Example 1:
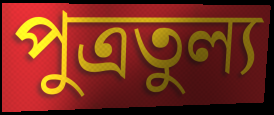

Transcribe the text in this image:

পুত্রতুল্য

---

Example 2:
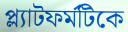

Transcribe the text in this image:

প্ল্যাটফর্মটিকে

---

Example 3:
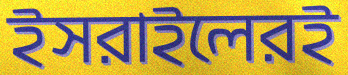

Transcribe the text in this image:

ইসরাইলেরই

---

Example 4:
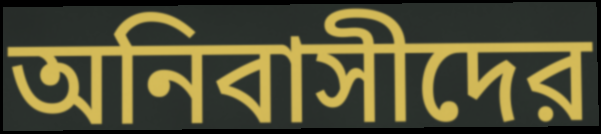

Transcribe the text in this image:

অনিবাসীদের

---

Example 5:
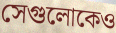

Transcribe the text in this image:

সেগুলোকেও